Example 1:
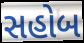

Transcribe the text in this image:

સહોબ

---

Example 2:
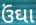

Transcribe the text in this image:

ઉંઘા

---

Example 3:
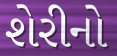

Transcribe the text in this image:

શેરીનો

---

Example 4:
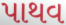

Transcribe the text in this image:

પાથવ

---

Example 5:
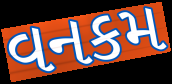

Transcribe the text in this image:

વનકમ